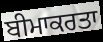
ਬੀਮਾਕਰਤਾ